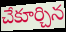
చేకూర్చిన